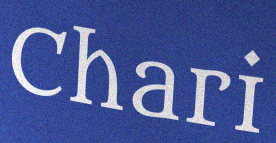
Chari